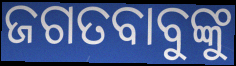
ଜଗତବାବୁଙ୍କୁ